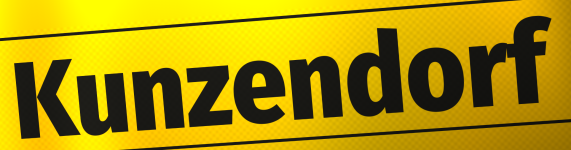
Kunzendorf